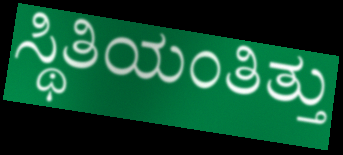
ಸ್ಥಿತಿಯಂತಿತ್ತು